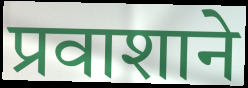
प्रवाशाने